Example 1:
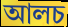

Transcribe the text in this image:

আলচ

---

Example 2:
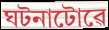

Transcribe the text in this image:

ঘটনাটোৱে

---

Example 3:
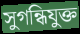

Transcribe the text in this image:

সুগন্ধিযুক্ত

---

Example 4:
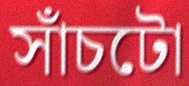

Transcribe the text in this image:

সাঁচটো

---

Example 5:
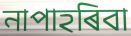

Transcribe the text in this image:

নাপাহৰিবা